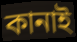
কানাই